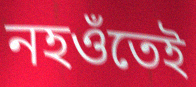
নহওঁতেই